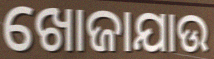
ଖୋଜାଯାଉ